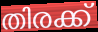
തിരക്ക്